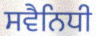
ਸਵੈਨਿਧੀ